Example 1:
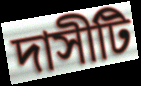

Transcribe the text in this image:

দাসীটি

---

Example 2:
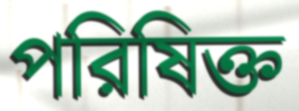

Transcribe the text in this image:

পরিষিক্ত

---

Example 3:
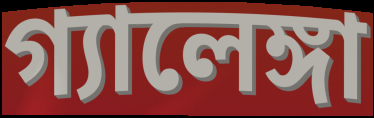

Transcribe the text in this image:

গ্যালেঙ্গা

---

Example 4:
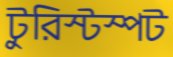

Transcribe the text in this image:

টুরিস্টস্পট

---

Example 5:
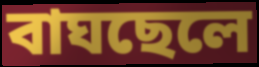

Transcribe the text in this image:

বাঘছেলে